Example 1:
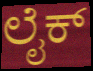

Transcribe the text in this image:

ಲೈಕ್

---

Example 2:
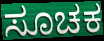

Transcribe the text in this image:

ಸೂಚಕ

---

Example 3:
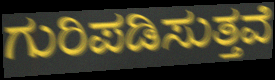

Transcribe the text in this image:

ಗುರಿಪಡಿಸುತ್ತವೆ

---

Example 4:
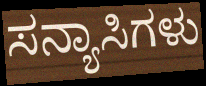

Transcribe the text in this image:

ಸನ್ಯಾಸಿಗಳು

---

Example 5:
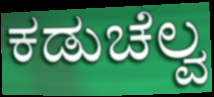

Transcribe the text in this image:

ಕಡುಚೆಲ್ವ